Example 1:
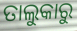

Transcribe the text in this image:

ତାଲୁକାରୁ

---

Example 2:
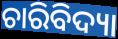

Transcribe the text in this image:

ଚାରିବିଦ୍ୟା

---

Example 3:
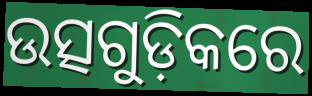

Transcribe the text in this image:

ଉତ୍ସଗୁଡ଼ିକରେ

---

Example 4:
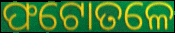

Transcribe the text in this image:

ଫଟୋତଳେ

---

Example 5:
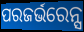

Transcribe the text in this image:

ପରଜର୍ଭରେନ୍ସ